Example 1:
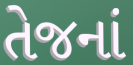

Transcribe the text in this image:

તેજનાં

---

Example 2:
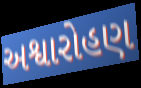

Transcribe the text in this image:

અશ્વારોહણ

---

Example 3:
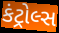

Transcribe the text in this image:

કંટ્રોલ્સ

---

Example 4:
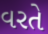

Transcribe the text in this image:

વરતે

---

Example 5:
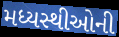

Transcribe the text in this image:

મધ્યસ્થીઓની